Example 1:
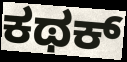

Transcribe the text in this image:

ಕಥಕ್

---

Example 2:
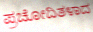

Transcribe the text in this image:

ಪ್ರಚೋದಿತಳಾದ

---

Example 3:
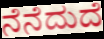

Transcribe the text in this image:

ನೆನೆದುದೆ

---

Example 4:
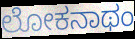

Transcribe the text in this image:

ಲೋಕನಾಥಂ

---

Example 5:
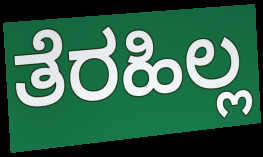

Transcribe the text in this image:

ತೆರಹಿಲ್ಲ